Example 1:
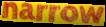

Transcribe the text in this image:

narrow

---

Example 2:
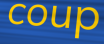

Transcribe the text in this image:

coup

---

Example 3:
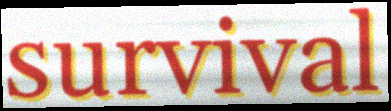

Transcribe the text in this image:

survival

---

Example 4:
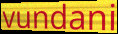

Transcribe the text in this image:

vundani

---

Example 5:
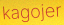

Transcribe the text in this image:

kagojer